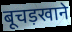
बूचड़खाने